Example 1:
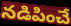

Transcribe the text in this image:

నడిపించే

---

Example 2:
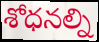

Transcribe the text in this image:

శోధనల్ని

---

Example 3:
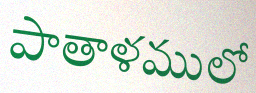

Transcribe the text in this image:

పాతాళములో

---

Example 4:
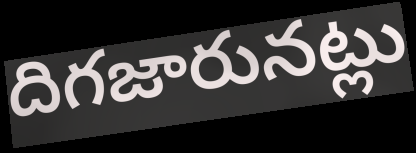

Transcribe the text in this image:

దిగజారునట్లు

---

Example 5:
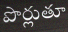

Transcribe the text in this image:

పొర్లుతూ